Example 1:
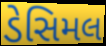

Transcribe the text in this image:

ડેસિમલ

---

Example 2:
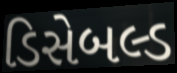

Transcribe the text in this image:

ડિસેબલ્ડ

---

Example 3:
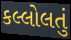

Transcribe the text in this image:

કલ્લોલતું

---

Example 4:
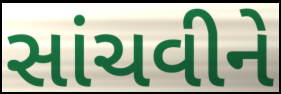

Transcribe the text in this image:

સાંચવીને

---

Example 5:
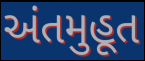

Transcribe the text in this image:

અંતમુહૂત